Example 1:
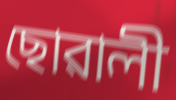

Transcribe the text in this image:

ছোৱালী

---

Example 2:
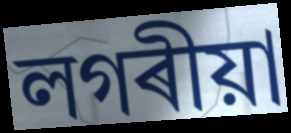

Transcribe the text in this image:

লগৰীয়া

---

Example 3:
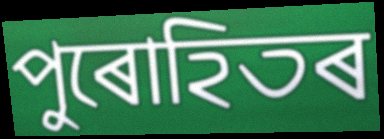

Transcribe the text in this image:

পুৰোহিতৰ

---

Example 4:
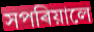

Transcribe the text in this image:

সপৰিয়ালে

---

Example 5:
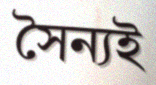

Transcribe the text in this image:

সৈন্যই